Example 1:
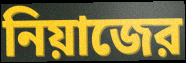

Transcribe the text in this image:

নিয়াজের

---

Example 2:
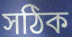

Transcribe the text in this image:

সঠিক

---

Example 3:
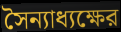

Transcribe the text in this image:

সৈন্যাধ্যক্ষের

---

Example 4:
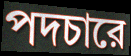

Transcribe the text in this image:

পদচারে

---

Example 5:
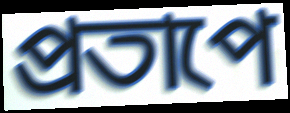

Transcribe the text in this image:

প্রতাপে